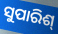
ସୁପାରିଶ୍